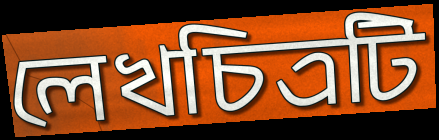
লেখচিত্রটি